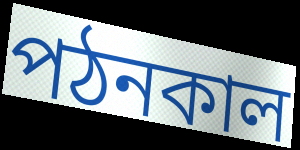
পঠনকাল